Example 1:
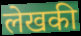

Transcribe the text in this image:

लेखकी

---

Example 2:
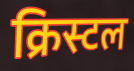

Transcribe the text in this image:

क्रिस्टल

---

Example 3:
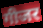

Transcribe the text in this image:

गीजर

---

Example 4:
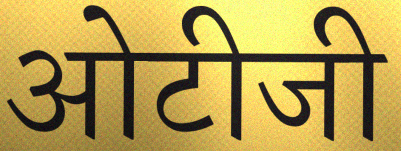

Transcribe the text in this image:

ओटीजी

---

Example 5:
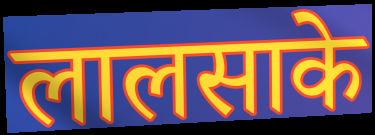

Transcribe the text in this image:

लालसाके